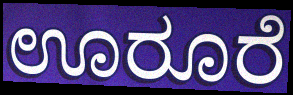
ಊರೂರೆ